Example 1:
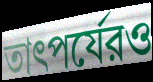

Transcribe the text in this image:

তাৎপর্যেরও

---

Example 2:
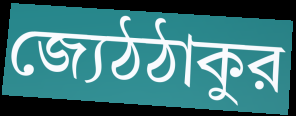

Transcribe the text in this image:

জ্যেঠঠাকুর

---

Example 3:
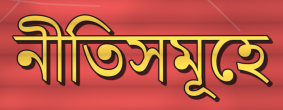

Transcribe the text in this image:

নীতিসমূহে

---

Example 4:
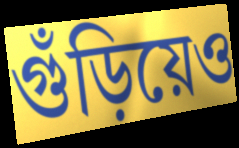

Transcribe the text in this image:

গুঁড়িয়েও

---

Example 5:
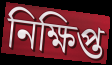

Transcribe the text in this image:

নিক্ষিপ্ত